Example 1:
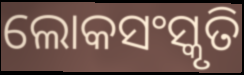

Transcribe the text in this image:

ଲୋକସଂସ୍କୃତି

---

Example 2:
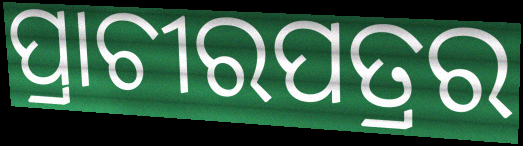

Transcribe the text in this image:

ପ୍ରାଚୀରପତ୍ରର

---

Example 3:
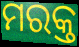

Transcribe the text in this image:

ମରକ୍ତ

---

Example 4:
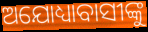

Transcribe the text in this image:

ଅଯୋଧ୍ୟାବାସୀଙ୍କୁ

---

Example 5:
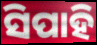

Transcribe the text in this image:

ସିପାହି